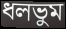
ধলভুম